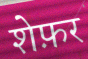
शेफ़र